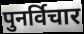
पुनर्विचार